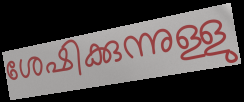
ശേഷിക്കുന്നുള്ളു